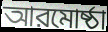
আরমোষ্ঠা